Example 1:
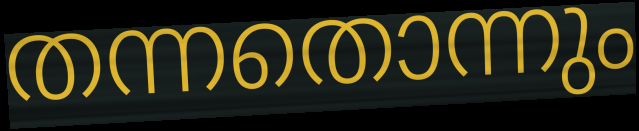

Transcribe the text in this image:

തന്നതൊന്നും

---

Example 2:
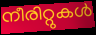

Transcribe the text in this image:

നീരിറ്റുകൾ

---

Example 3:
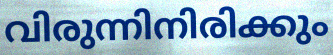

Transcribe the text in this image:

വിരുന്നിനിരിക്കും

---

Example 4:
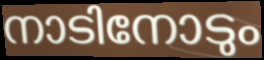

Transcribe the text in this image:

നാടിനോടും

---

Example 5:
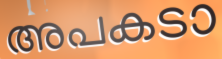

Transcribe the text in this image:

അപകടാ